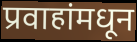
प्रवाहांमधून